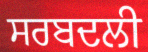
ਸਰਬਦਲੀ